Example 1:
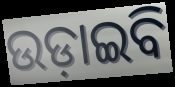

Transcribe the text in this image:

ଉଡ଼ାଇବି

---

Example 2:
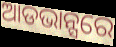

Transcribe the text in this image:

ଆଡଭାନ୍ସରେ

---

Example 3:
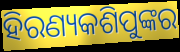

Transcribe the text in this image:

ହିରଣ୍ୟକଶିପୁଙ୍କର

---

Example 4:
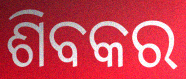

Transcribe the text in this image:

ଶିବକର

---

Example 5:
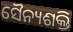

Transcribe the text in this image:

ସୈନ୍ୟଶକ୍ତି